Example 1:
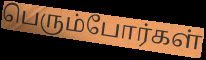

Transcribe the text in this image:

பெரும்போர்கள்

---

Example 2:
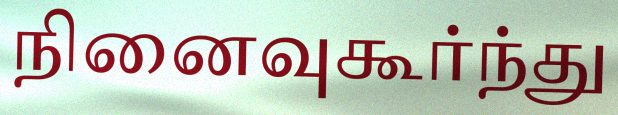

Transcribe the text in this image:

நினைவுகூர்ந்து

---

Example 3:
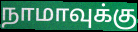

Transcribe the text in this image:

நாமாவுக்கு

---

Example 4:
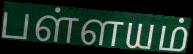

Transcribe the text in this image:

பள்ளயம்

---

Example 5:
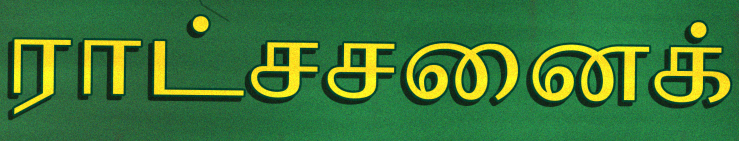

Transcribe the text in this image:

ராட்சசனைக்